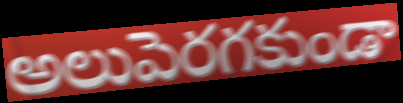
అలుపెరగకుండా